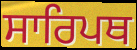
ਸਾਰਿਪਥ